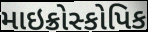
માઇક્રોસ્કોપિક